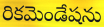
రికమెండేషను